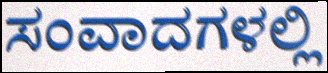
ಸಂವಾದಗಳಲ್ಲಿ